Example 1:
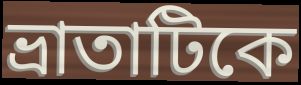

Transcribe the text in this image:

ভ্রাতাটিকে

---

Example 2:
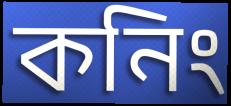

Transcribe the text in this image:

কনিং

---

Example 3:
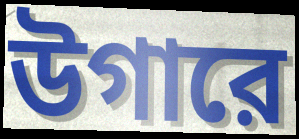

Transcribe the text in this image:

উগারে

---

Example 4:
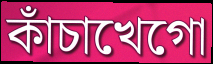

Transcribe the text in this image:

কাঁচাখেগো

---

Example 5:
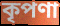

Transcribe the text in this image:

কৃপণা